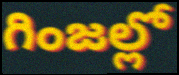
గింజల్లో